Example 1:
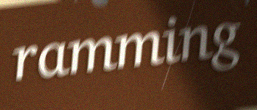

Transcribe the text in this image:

ramming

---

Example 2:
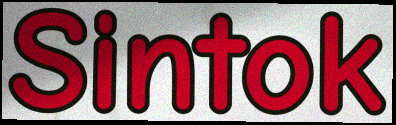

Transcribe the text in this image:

Sintok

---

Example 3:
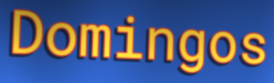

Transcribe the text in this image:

Domingos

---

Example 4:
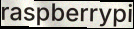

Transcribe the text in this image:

raspberrypi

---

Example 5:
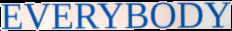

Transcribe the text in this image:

EVERYBODY